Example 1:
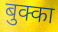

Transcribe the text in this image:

बुक्का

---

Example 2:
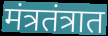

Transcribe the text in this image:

मंत्रतंत्रात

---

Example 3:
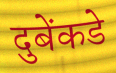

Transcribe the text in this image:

दुबेंकडे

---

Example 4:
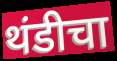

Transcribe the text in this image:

थंडीचा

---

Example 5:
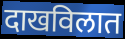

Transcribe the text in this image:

दाखविलात